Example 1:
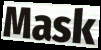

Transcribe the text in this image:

Mask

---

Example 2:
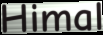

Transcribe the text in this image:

Himal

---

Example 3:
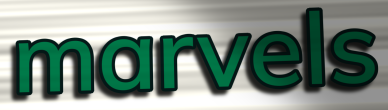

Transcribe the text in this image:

marvels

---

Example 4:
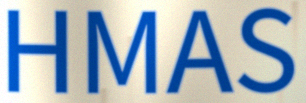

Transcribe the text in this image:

HMAS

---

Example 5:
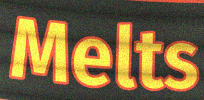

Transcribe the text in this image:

Melts